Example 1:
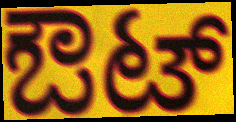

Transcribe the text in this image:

ಔಟ್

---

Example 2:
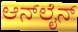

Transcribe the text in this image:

ಆನ್‍ಲೈನ್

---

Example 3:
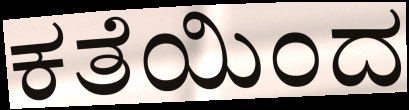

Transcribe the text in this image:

ಕತೆಯಿಂದ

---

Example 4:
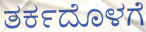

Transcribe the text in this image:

ತರ್ಕದೊಳಗೆ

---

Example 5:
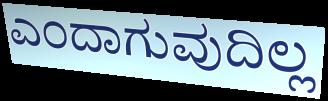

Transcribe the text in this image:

ಎಂದಾಗುವುದಿಲ್ಲ